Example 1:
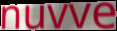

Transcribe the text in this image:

nuvve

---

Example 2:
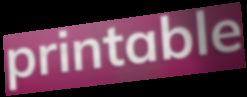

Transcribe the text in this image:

printable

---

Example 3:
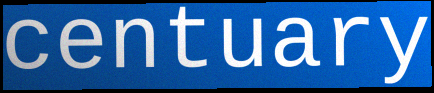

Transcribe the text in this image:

centuary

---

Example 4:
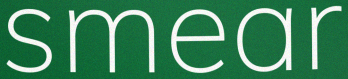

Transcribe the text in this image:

smear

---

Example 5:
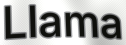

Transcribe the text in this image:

Llama